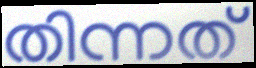
തിന്നത്